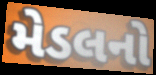
મેડલનો